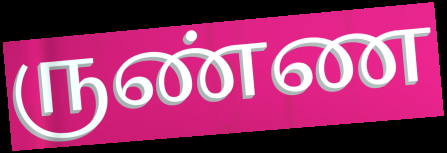
ருண்ண